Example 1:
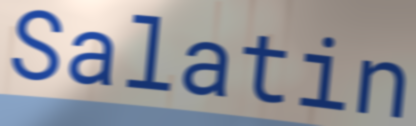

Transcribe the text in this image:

Salatin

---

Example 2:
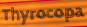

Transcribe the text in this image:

Thyrocopa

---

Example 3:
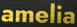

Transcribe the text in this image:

amelia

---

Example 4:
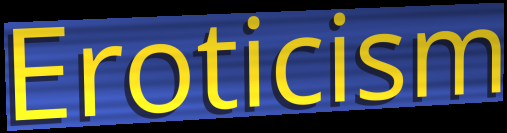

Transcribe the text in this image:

Eroticism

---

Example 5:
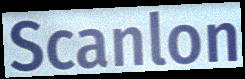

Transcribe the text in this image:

Scanlon